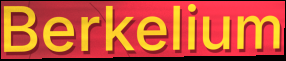
Berkelium